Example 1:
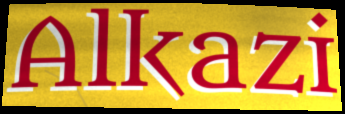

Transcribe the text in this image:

Alkazi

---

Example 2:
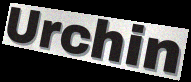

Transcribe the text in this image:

Urchin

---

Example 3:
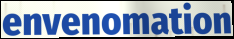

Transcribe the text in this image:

envenomation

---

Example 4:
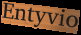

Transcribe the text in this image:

Entyvio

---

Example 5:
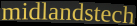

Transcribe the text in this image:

midlandstech